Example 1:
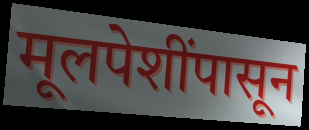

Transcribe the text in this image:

मूलपेशींपासून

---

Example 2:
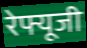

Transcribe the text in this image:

रेफ्यूजी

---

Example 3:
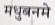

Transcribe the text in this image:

मधुबनमे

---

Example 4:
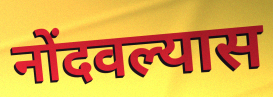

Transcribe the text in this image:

नोंदवल्यास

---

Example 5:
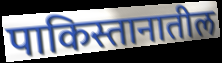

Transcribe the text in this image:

पाकिस्‍तानातील